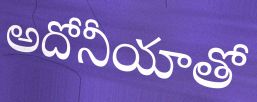
అదోనీయాతో